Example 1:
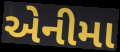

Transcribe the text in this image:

એનીમા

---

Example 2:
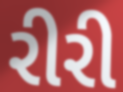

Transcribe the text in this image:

રીરી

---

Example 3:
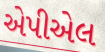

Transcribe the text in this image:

એપીએલ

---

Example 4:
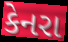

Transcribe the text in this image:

કેનરા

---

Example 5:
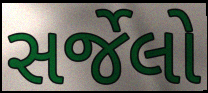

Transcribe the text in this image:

સર્જેલો